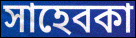
সাহেবকা